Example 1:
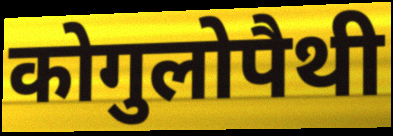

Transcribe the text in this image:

कोगुलोपैथी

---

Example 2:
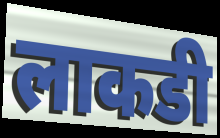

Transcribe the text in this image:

लाकडी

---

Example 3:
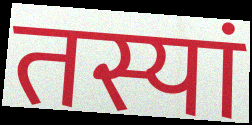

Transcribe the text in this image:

तस्यां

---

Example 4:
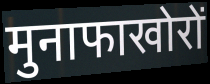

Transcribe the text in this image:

मुनाफाखोरों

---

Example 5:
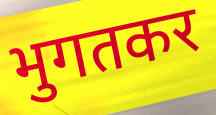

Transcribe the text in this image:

भुगतकर